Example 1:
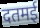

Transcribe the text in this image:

दतमई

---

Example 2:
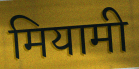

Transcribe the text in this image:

मियामी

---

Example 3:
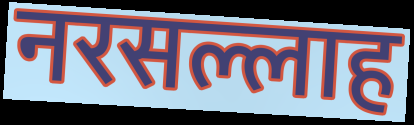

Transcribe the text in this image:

नरसल्लाह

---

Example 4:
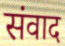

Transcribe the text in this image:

संवाद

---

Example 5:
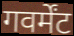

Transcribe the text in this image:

गवर्मेंट